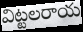
విట్టలరాయ